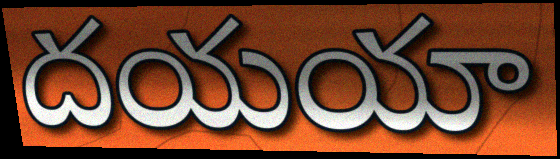
దయయా